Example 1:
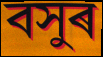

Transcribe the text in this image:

বসুৰ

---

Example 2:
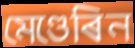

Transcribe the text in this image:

মেণ্ডেৰিন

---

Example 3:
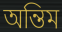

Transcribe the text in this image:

অন্তিম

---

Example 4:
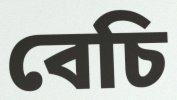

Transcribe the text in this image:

বেচি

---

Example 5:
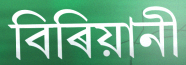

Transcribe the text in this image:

বিৰিয়ানী